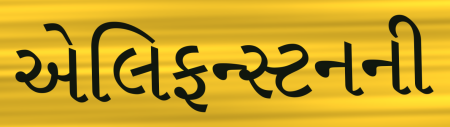
એલિફન્સ્ટનની